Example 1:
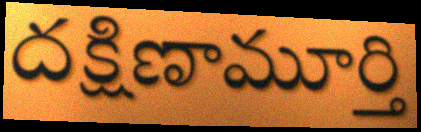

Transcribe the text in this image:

దక్షిణామూర్తి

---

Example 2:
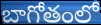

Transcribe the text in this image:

బాగోతంలో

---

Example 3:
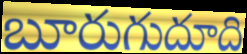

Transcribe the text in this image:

బూరుగుదూది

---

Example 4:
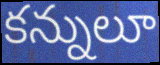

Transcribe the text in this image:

కన్నులూ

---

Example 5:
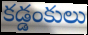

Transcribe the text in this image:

కడ్డంకులు